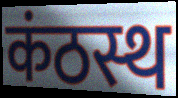
कंठस्थ